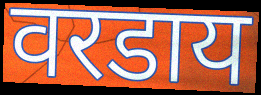
वरडाय